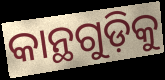
କାନ୍ଥଗୁଡ଼ିକୁ